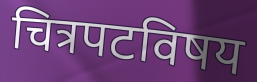
चित्रपटविषय